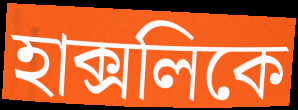
হাক্সলিকে